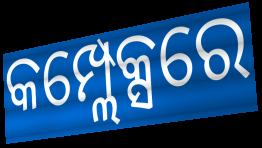
କମ୍ପ୍ଲେକ୍ସରେ